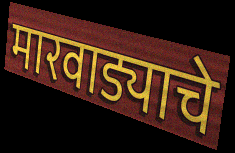
मारवाड्याचे